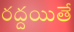
రద్దయితే